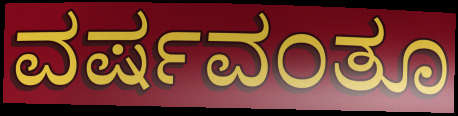
ವರ್ಷವಂತೂ